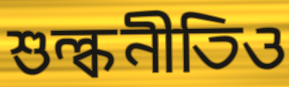
শুল্কনীতিও